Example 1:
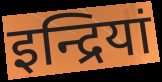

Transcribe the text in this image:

इन्द्रियां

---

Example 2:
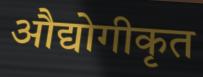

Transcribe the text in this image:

औद्योगीकृत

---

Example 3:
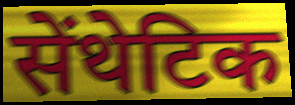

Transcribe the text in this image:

सेंथेटिक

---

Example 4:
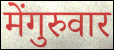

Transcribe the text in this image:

मेंगुरुवार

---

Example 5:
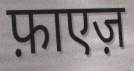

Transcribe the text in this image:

फ़ाएज़